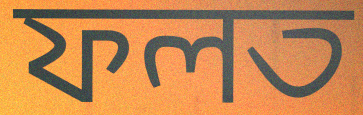
ফলত